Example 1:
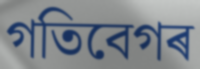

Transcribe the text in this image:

গতিবেগৰ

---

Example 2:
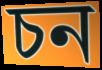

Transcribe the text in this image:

চন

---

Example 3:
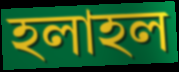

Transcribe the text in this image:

হলাহল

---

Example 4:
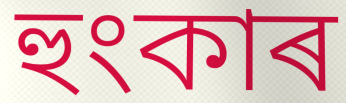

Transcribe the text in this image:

হুংকাৰ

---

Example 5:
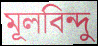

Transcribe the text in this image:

মূলবিন্দু